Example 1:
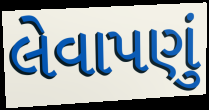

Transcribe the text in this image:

લેવાપણું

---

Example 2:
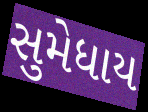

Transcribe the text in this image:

સુમેધાય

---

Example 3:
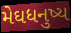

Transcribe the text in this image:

મેઘધનુષ્ય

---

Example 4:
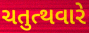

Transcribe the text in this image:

ચતુત્થવારે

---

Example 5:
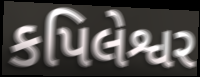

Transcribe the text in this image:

કપિલેશ્વર